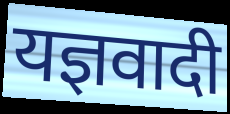
यज्ञवादी